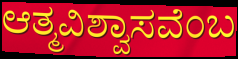
ಆತ್ಮವಿಶ್ವಾಸವೆಂಬ